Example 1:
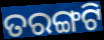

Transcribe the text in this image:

ତରଙ୍ଗଟି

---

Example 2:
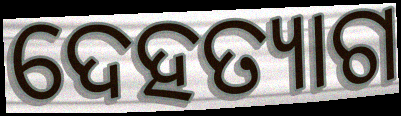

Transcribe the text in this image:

ଦେହତ୍ୟାଗ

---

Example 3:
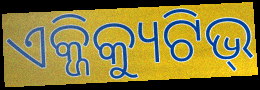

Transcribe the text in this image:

ଏକ୍ଜିକ୍ୟୁଟିଭ୍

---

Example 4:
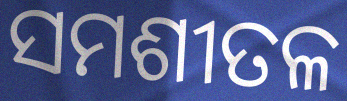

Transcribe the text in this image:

ସମଶୀତଳ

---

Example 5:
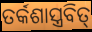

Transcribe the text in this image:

ତର୍କଶାସ୍ତ୍ରବିତ୍